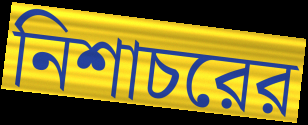
নিশাচরের